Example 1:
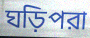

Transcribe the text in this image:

ঘড়িপরা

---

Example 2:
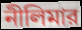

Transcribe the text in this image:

নীলিমার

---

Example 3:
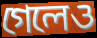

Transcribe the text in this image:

গেলেও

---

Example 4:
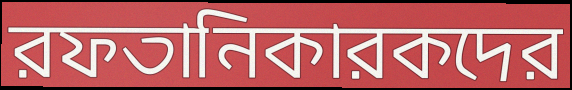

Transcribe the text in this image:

রফতানিকারকদের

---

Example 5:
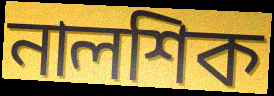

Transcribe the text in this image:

নালশিক